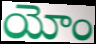
యోం